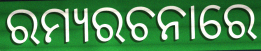
ରମ୍ୟରଚନାରେ